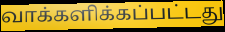
வாக்களிக்கப்பட்டது